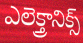
ఎలెక్త్రానిక్స్